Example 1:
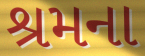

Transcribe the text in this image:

શ્રમના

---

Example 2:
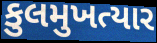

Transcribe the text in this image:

કુલમુખત્યાર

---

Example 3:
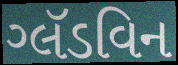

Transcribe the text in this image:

ગ્લૅડવિન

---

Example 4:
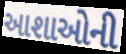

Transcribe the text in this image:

આશાઓની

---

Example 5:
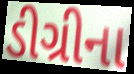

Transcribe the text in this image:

ડીગ્રીના